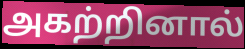
அகற்றினால்